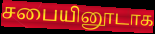
சபையினூடாக